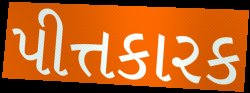
પીત્તકારક